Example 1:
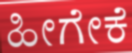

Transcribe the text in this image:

ಹೀಗೇಕೆ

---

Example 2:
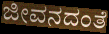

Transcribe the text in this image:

ಜೀವನದಂತೆ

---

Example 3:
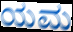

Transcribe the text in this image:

ಯಮ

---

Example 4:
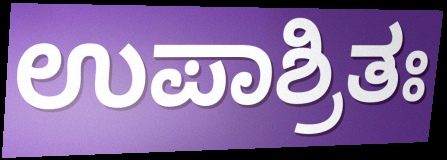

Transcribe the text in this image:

ಉಪಾಶ್ರಿತಃ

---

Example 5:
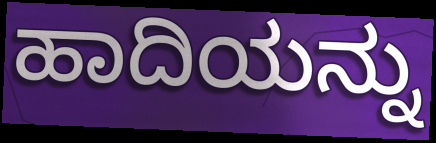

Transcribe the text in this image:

ಹಾದಿಯನ್ನು